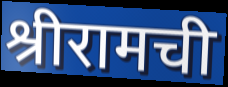
श्रीरामची